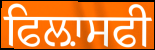
ਫਿਲ਼ਾਸਫੀ